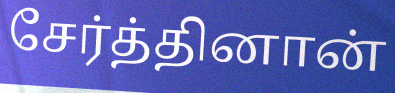
சேர்த்தினான்